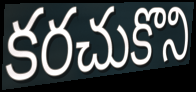
కరచుకొని